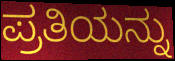
ಪ್ರತಿಯನ್ನು